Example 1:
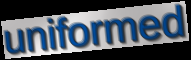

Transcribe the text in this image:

uniformed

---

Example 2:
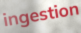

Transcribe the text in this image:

ingestion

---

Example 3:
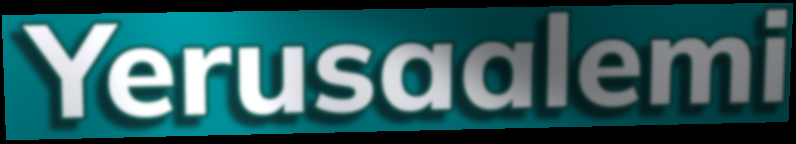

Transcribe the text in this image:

Yerusaalemi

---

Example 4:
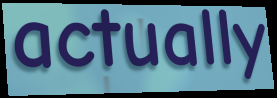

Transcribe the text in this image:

actually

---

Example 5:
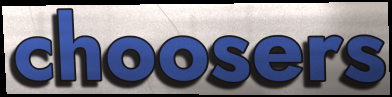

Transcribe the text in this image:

choosers